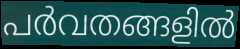
പർവതങ്ങളിൽ